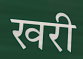
खरी